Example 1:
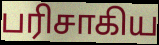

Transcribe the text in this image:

பரிசாகிய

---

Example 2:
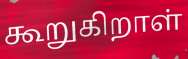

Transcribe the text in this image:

கூறுகிறாள்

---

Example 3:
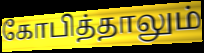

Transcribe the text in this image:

கோபித்தாலும்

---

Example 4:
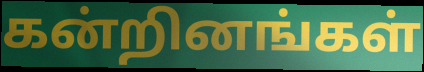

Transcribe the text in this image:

கன்றினங்கள்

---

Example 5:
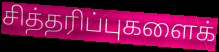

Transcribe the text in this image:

சித்தரிப்புகளைக்